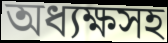
অধ্যক্ষসহ